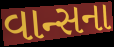
વાન્સના